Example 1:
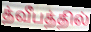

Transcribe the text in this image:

த்வீபத்தில்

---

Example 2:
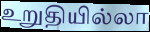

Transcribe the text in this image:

உறுதியில்லா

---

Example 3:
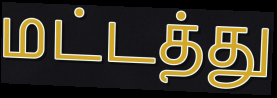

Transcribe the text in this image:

மட்டத்து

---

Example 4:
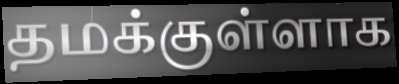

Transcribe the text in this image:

தமக்குள்ளாக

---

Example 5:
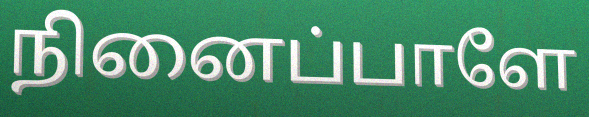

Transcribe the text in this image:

நினைப்பாளே